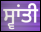
ਸ੍ਵਾਂਤੀ